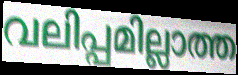
വലിപ്പമില്ലാത്ത